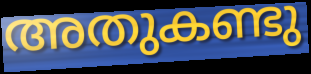
അതുകണ്ടു